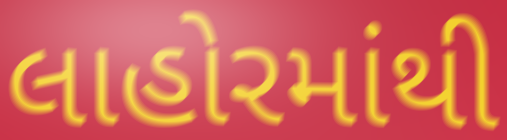
લાહોરમાંથી